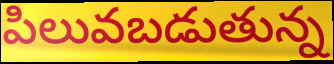
పిలువబడుతున్న